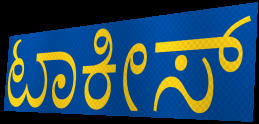
ಟಾಕೀಸ್